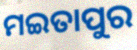
ମଇତାପୁର